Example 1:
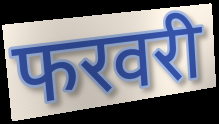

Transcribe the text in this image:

फरवरी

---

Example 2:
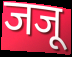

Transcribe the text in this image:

जजू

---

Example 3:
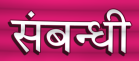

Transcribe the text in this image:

संबन्धी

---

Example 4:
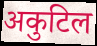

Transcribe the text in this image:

अकुटिल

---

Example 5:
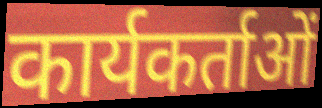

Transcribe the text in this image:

कार्यकर्ताओं